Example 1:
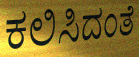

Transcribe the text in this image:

ಕಲಿಸಿದಂತೆ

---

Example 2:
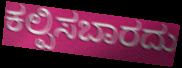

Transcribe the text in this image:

ಕಲ್ಪಿಸಬಾರದು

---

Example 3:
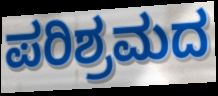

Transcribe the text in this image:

ಪರಿಶ್ರಮದ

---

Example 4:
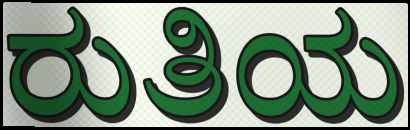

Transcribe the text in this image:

ರುತಿಯ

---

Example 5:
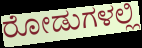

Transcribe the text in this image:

ರೋಡುಗಳಲ್ಲಿ